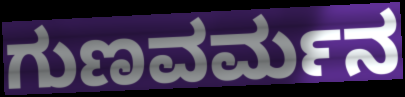
ಗುಣವರ್ಮನ